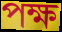
পক্ষ